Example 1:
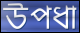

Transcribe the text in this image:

উপধা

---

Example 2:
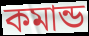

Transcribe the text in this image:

কমান্ড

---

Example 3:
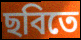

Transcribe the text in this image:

ছবিতে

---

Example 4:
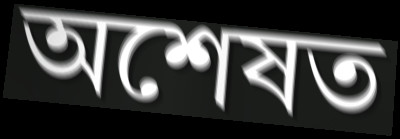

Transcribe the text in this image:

অশেষত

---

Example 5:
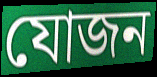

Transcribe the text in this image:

যোজন